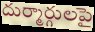
దుర్మార్గులపై